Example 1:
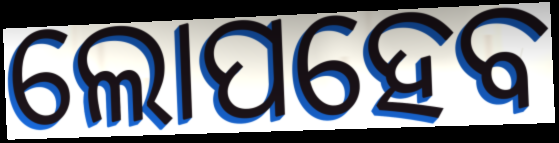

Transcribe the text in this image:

ଲୋପହେବ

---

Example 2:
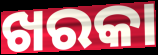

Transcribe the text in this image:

ଖରକା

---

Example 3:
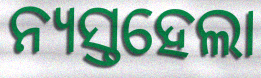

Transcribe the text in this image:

ନ୍ୟସ୍ତହେଲା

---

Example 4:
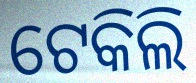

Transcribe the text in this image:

ଟେକିଲି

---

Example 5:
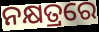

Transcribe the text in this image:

ନକ୍ଷତ୍ରରେ